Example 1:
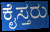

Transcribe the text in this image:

ಕೈಸ್ತರು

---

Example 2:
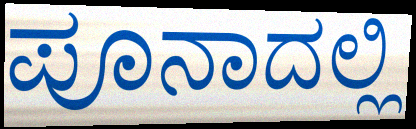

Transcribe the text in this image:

ಪೂನಾದಲ್ಲಿ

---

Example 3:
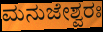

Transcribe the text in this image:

ಮನುಜೇಶ್ವರಃ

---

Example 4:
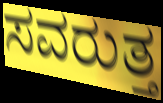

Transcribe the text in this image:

ಸವರುತ್ತ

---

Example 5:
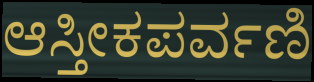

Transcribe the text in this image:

ಆಸ್ತೀಕಪರ್ವಣಿ